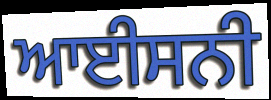
ਆਈਸਨੀ